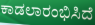
ಕಾಡಲಾರಂಭಿಸಿದೆ